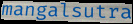
mangalsutra